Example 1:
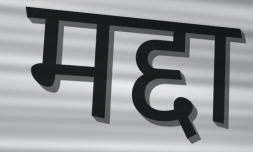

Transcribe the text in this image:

मद्दा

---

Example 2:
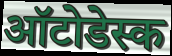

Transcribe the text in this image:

ऑटोडेस्क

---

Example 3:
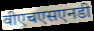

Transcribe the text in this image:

वीएचएसएनडी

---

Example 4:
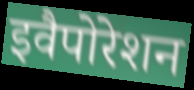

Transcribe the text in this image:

इवैपोरेशन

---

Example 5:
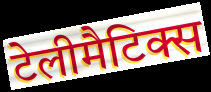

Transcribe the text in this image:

टेलीमैटिक्स